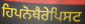
ਹਿਪਨੋਥੈਰੇਪਿਸਟ